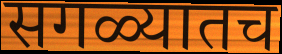
सगळ्यातच